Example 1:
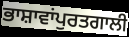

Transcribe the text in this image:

ਭਾਸ਼ਾਵਾਂਪੁਰਤਗਾਲੀ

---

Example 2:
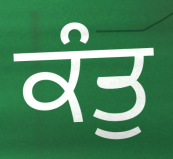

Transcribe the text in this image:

ਕੰਤੁ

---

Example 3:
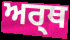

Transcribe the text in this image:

ਅਰ੍ਥ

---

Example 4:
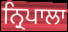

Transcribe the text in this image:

ਨ੍ਰਿਪਾਲਾ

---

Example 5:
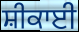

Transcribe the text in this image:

ਸ਼ੀਕਾਈ